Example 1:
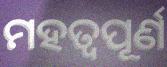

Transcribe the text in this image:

ମହତ୍ୱପୂର୍ଣ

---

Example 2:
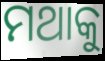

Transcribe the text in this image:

ମଥାକୁ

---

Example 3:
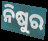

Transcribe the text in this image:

ନିଷୁର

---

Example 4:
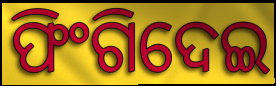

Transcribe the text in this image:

ଫିଂଗିଦେଇ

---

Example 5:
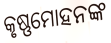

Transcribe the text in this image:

କୃଷ୍ଣମୋହନଙ୍କ